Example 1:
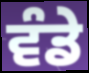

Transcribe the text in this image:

ਵੰਡੇ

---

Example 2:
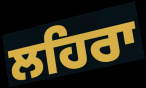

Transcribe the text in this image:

ਲਹਿਰਾ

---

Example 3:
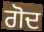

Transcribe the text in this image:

ਗੋਦ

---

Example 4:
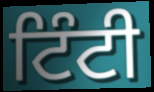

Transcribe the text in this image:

ਟਿੰਟੀ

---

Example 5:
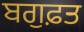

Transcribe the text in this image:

ਬਗੁਫ਼ਤ